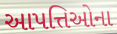
આપત્તિઓના